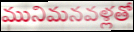
మునిమనవళ్లతో